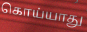
கொய்யாது